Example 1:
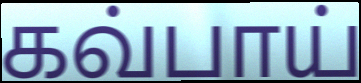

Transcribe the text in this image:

கவ்பாய்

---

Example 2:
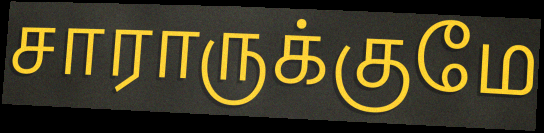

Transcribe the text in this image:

சாராருக்குமே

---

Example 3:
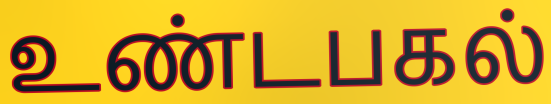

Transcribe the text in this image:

உண்டபகல்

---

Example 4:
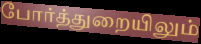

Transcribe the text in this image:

போர்த்துறையிலும்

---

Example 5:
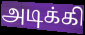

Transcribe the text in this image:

அடிக்கி